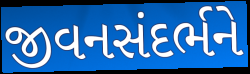
જીવનસંદર્ભને